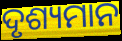
ଦୃଶ୍ୟମାନ